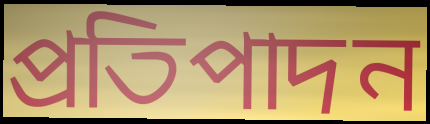
প্ৰতিপাদন